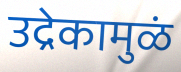
उद्रेकामुळं